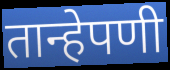
तान्हेपणी